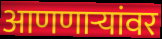
आणणाऱ्यांवर